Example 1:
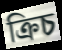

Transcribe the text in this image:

ক্রিচ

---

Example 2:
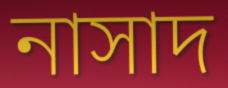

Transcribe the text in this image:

নাসাদ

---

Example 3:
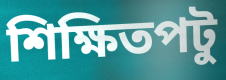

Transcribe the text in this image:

শিক্ষিতপটু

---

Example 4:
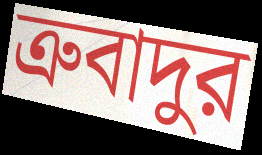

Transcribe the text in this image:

ত্রুবাদুর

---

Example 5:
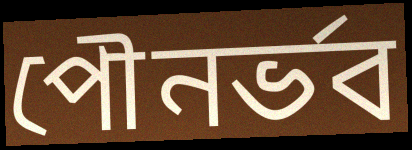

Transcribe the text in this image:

পৌনর্ভব